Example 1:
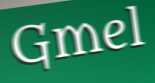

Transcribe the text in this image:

Gmel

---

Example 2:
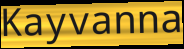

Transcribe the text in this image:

Kayvanna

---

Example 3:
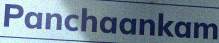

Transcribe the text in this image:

Panchaankam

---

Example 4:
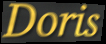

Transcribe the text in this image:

Doris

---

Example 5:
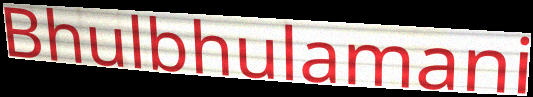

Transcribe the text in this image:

Bhulbhulamani